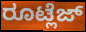
ರೂಟ್ಲೆಜ್